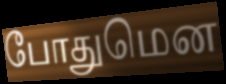
போதுமென